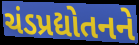
ચંડપ્રદ્યોતનને